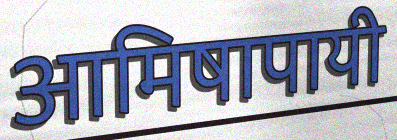
आमिषापायी